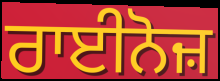
ਰਾਈਨੋਜ਼